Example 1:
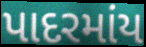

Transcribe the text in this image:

પાદરમાંય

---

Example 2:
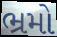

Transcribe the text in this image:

ભ્રમો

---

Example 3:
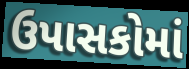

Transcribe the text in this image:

ઉપાસકોમાં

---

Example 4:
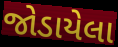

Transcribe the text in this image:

જોડાયેલા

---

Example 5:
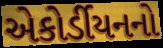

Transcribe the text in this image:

એકોર્ડીયનનો